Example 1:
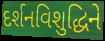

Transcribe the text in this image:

દર્શનવિશુદ્ધિને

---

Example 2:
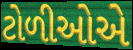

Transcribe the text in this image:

ટોળીઓએ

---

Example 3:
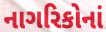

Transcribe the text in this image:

નાગરિકોનાં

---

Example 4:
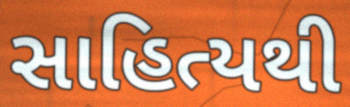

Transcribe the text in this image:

સાહિત્યથી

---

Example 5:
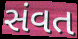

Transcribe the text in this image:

સંવત